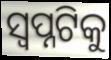
ସ୍ୱପ୍ନଟିକୁ